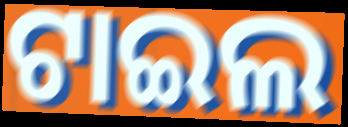
ଟାଇଲ